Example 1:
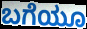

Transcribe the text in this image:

ಬಗೆಯೂ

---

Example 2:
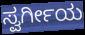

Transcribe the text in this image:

ಸ್ವರ್ಗೀಯ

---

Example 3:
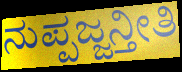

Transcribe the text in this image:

ನುಪ್ಪಜ್ಜನ್ತೀತಿ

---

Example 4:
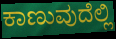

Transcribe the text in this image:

ಕಾಣುವುದೆಲ್ಲಿ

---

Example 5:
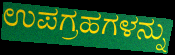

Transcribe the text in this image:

ಉಪಗ್ರಹಗಳನ್ನು